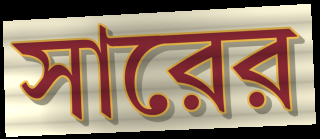
সারের